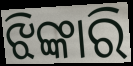
ଝିଙ୍କାରି